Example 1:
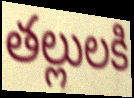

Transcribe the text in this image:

తల్లులకి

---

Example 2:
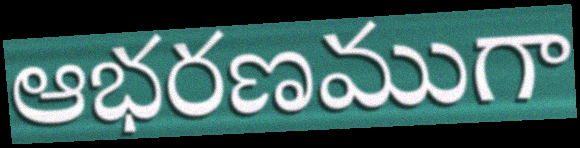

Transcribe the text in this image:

ఆభరణముగా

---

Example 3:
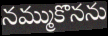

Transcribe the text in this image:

నమ్ముకొనను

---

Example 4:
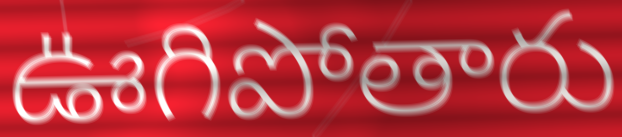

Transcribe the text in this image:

ఊగిపోతారు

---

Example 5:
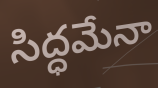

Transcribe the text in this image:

సిద్ధమేనా